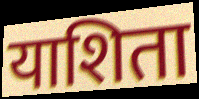
याशिता